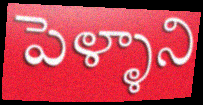
పెళ్ళాని